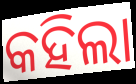
କହିଲା